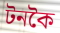
টনকৈ